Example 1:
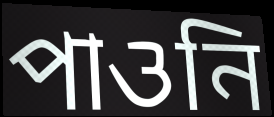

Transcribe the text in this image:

পাওনি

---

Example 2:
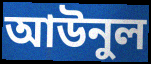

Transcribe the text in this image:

আউনুল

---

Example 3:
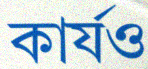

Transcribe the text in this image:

কার্যও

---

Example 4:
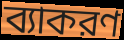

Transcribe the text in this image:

ব্যাকরণ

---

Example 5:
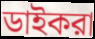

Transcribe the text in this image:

ডাইকরা